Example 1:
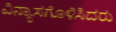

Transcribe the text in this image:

ವಿನ್ಯಾಸಗೊಳಿಸಿದರು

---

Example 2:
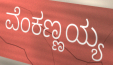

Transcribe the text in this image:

ವೆಂಕಣ್ಣಯ್ಯ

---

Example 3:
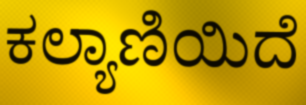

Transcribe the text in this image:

ಕಲ್ಯಾಣಿಯಿದೆ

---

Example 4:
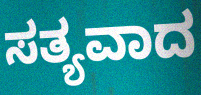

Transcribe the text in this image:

ಸತ್ಯವಾದ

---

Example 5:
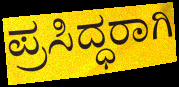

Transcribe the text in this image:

ಪ್ರಸಿದ್ಧರಾಗಿ